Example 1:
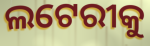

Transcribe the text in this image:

ଲଟେରୀକୁ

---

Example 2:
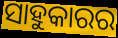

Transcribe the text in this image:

ସାହୁକାରର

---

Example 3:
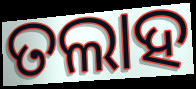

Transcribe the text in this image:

ତଲାହ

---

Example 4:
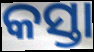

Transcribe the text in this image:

କସ୍ତା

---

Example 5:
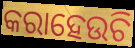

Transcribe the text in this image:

କରାହେଉଚି